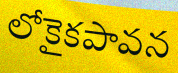
లోకైకపావన